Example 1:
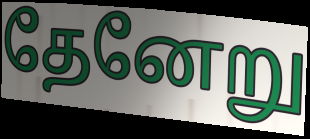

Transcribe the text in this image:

தேனேறு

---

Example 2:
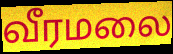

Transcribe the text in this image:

வீரமலை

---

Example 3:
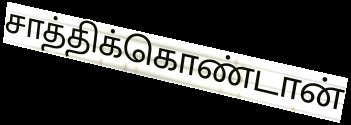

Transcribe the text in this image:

சாத்திக்கொண்டான்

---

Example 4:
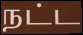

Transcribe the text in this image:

நட்ட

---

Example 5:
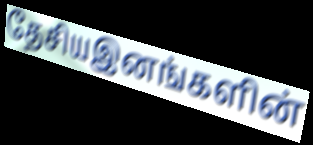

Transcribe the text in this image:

தேசியஇனங்களின்